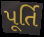
પૂર્તિ